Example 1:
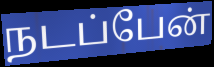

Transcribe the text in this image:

நடப்பேன்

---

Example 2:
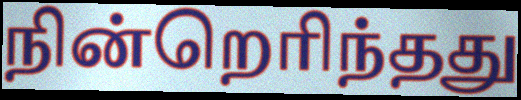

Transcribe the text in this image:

நின்றெரிந்தது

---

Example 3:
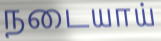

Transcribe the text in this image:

நடையாய்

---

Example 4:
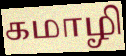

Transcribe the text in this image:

கமாழி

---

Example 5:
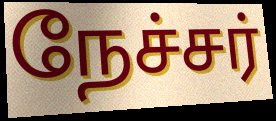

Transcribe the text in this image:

நேச்சர்